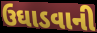
ઉઘાડવાની